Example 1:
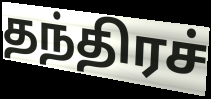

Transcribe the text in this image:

தந்திரச்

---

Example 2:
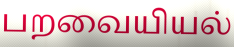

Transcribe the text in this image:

பறவையியல்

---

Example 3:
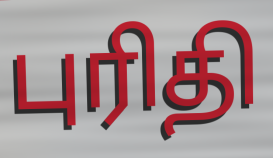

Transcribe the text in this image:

புரிதி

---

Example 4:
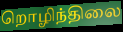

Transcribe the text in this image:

றொழிந்திலை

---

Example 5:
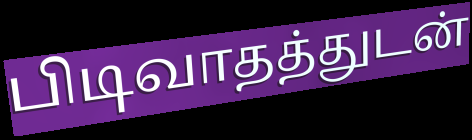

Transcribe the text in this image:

பிடிவாதத்துடன்